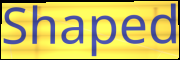
Shaped